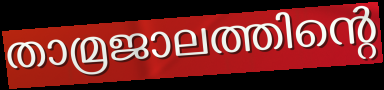
താമ്രജാലത്തിന്റെ